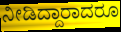
ನೀಡಿದ್ದಾರಾದರೂ